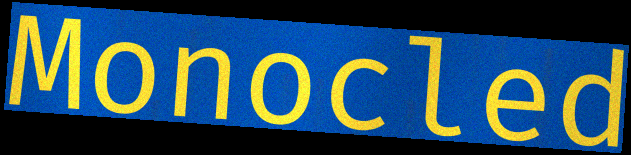
Monocled